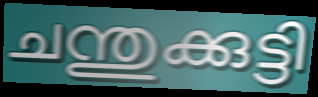
ചന്തുക്കുട്ടി